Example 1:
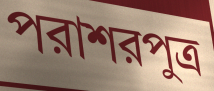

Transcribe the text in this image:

পরাশরপুত্র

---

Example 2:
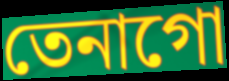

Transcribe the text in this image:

তেনাগো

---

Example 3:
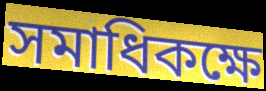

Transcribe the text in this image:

সমাধিকক্ষে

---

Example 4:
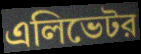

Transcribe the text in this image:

এলিভেটর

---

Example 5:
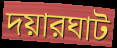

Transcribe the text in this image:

দয়ারঘাট